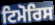
ਟਿਮੋਰਿਸ